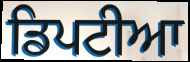
ਡਿਪਟੀਆ